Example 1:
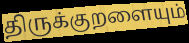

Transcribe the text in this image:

திருக்குறளையும்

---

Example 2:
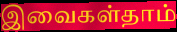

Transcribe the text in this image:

இவைகள்தாம்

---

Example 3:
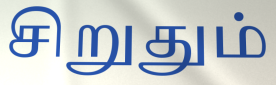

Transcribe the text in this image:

சிறுதும்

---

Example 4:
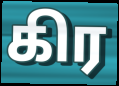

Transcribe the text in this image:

கிர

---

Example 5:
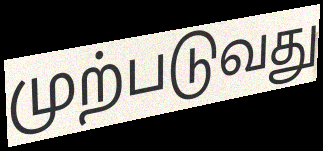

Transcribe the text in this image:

முற்படுவது